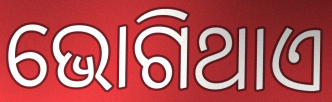
ଭୋଗିଥାଏ